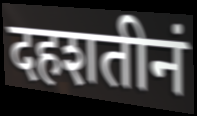
दहशतीनं